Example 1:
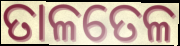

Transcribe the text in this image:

ତାଳତେଳ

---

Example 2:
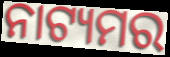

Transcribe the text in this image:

ନାଟ୍ୟମର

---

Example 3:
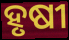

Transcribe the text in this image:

ହୃଷୀ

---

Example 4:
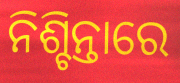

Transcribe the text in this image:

ନିଶ୍ଚିନ୍ତାରେ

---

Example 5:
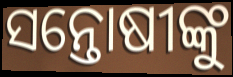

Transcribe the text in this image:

ସନ୍ତୋଷୀଙ୍କୁ